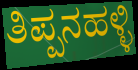
ತಿಪ್ಪನಹಳ್ಳಿ